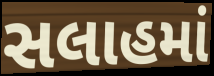
સલાહમાં